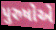
પુરુષોએ